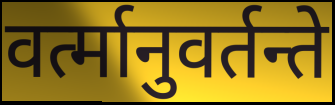
वर्त्मानुवर्तन्ते